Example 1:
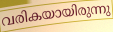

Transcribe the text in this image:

വരികയായിരുന്നു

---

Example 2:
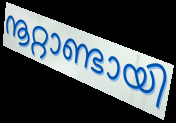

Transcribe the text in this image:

നൂറ്റാണ്ടായി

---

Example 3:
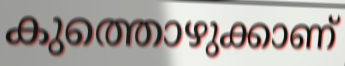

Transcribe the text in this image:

കുത്തൊഴുക്കാണ്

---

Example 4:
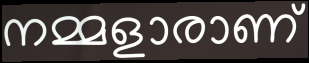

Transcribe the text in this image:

നമ്മളാരാണ്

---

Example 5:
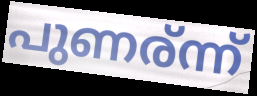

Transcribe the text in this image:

പുണര്ന്ന്